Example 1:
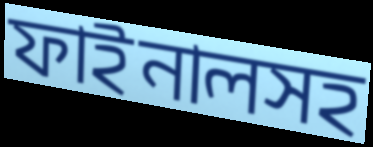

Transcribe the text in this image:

ফাইনালসহ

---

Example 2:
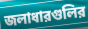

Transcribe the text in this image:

জলাধারগুলির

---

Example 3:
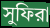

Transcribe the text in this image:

সুফিরা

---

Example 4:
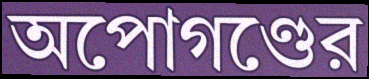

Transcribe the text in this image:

অপোগণ্ডের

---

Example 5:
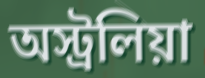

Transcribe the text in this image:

অস্ট্রলিয়া